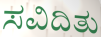
ಸವಿದಿತು